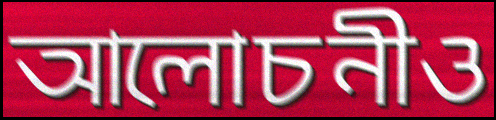
আলোচনীও